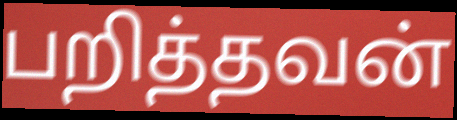
பறித்தவன்